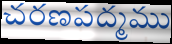
చరణపద్మము